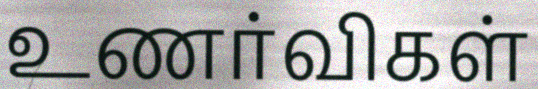
உணர்விகள்